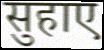
सुहाए